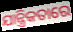
ଯାନ୍ତ୍ରିକତାରେ